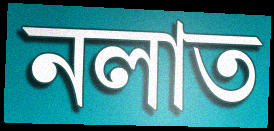
নলাত